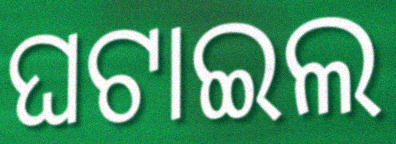
ଘଟାଇଲ